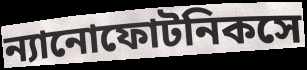
ন্যানোফোটনিকসে